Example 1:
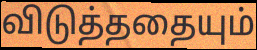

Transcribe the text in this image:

விடுத்ததையும்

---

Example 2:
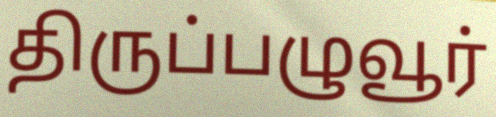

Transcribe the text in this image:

திருப்பழுவூர்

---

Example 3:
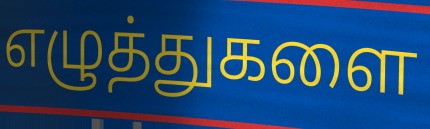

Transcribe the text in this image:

எழுத்துகளை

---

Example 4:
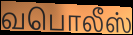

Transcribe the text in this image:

வபொலீஸ்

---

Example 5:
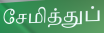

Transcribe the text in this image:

சேமித்துப்